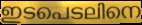
ഇടപെടലിനെ